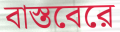
বাস্তবেরে